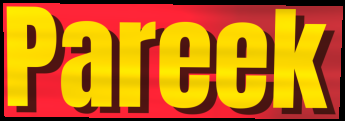
Pareek